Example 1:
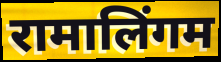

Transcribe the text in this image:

रामालिंगम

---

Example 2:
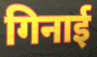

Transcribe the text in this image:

गिनाई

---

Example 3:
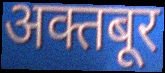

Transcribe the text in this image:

अक्तबूर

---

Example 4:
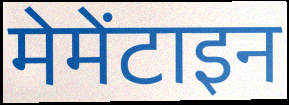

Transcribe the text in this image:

मेमेंटाइन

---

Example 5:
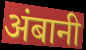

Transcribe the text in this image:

अंबानी